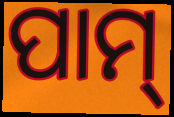
ପାମ୍